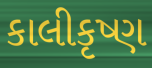
કાલીકૃષ્ણ